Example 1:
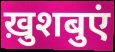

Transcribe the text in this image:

ख़ुशबुएं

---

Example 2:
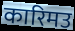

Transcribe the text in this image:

कारिमउ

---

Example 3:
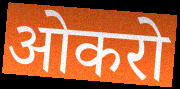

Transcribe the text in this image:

ओकरो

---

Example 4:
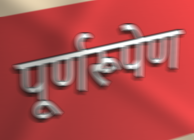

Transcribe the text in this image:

पूर्णरूपेण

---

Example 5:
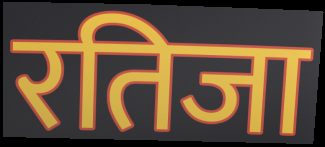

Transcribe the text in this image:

रतिजा